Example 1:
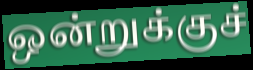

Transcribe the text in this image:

ஒன்றுக்குச்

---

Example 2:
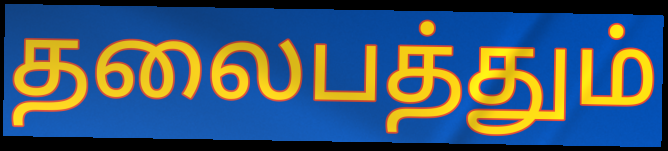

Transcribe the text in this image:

தலைபத்தும்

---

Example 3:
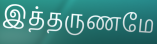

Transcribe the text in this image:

இத்தருணமே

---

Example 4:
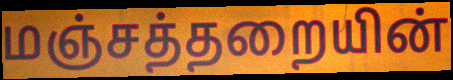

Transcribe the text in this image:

மஞ்சத்தறையின்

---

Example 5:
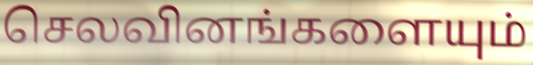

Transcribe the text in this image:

செலவினங்களையும்